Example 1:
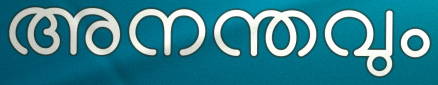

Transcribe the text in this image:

അനന്തവും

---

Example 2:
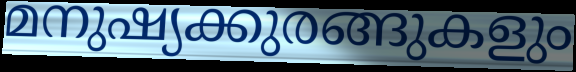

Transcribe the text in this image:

മനുഷ്യക്കുരങ്ങുകളും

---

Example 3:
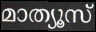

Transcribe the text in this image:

മാത്യൂസ്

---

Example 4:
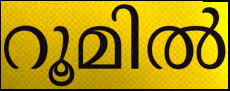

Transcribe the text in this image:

റൂമിൽ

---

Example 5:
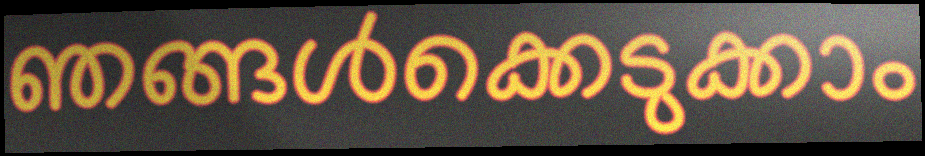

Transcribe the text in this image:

ഞങ്ങൾക്കെടുക്കാം